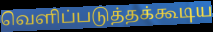
வெளிப்படுத்தக்கூடிய